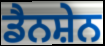
ਡੈਨਸ਼ੇਨ